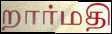
றார்மதி